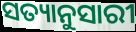
ସତ୍ୟାନୁସାରୀ